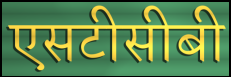
एसटीसीबी